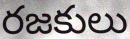
రజకులు